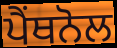
ਪੈਂਥਨੋਲ